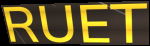
RUET